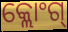
କ୍ଲୋଂଗ୍